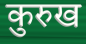
कुरुख